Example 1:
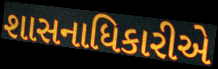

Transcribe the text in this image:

શાસનાધિકારીએ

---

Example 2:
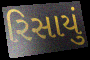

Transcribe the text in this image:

રિસાયું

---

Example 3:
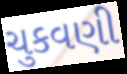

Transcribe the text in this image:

ચુકવણી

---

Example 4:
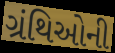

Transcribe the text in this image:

ગ્રંથિઓની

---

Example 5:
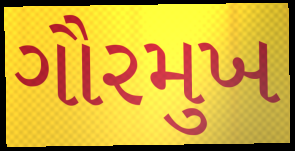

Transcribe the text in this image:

ગૌરમુખ